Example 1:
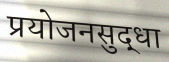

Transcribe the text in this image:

प्रयोजनसुद्धा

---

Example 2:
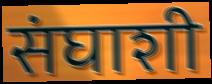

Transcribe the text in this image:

संघाशी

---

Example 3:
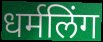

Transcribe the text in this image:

धर्मलिंग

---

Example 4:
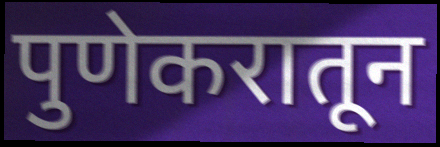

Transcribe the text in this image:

पुणेकरातून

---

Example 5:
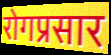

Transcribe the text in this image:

रोगप्रसार